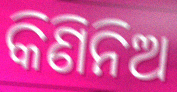
କିଣିନିଅ